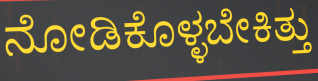
ನೋಡಿಕೊಳ್ಳಬೇಕಿತ್ತು